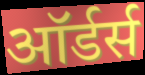
ऑर्डर्स